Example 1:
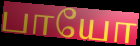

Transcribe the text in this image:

பாயோ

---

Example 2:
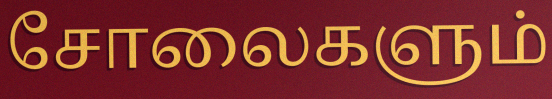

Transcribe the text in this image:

சோலைகளும்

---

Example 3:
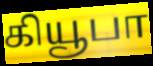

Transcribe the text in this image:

கியூபா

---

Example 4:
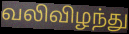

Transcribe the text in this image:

வலிவிழந்து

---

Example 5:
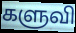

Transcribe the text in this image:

களுவி